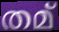
തമ്